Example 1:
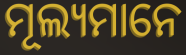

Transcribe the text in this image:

ମୂଲ୍ୟମାନେ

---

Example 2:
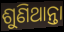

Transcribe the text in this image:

ଶୁଣିଥାନ୍ତା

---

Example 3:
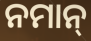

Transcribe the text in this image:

ନମାନ୍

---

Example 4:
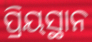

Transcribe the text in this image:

ପ୍ରିୟସ୍ଥାନ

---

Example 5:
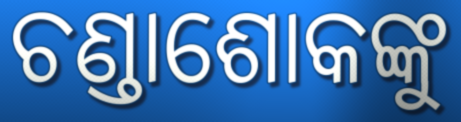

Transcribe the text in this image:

ଚଣ୍ଡାଶୋକଙ୍କୁ